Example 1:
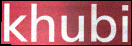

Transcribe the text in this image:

khubi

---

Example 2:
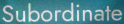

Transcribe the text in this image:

Subordinate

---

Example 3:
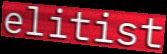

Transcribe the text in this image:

elitist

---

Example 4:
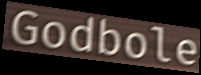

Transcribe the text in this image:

Godbole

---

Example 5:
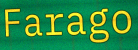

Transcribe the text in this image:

Farago